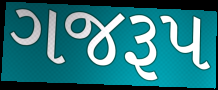
ગજરૂપ